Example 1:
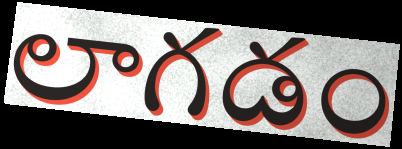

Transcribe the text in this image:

లాగడం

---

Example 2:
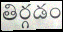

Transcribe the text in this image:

తిర్గడం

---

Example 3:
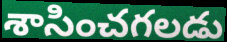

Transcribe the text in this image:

శాసించగలడు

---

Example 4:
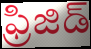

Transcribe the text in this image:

ఫ్రిజిడ్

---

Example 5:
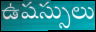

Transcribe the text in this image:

ఉషస్సులు